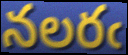
నలరఁ